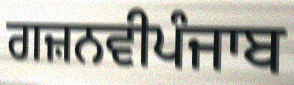
ਗਜ਼ਨਵੀਪੰਜਾਬ